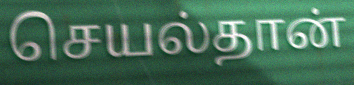
செயல்தான்